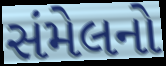
સંમેલનો